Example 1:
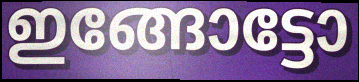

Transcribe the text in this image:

ഇങ്ങോട്ടോ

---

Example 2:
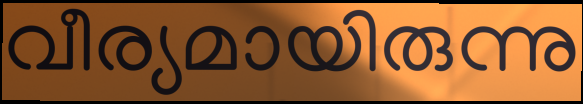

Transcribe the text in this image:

വീര്യമായിരുന്നു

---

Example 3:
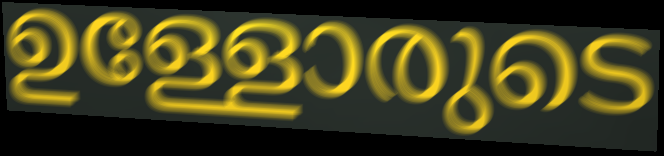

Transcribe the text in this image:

ഉള്ളോരുടെ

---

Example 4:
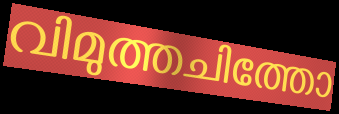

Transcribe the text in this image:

വിമുത്തചിത്തോ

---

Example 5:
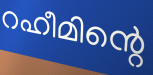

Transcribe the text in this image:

റഹീമിന്റെ